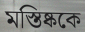
মস্তিষ্ককে